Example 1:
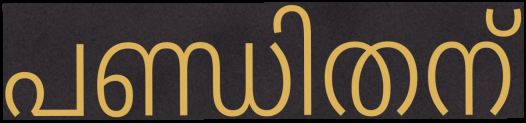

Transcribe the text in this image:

പണ്ഡിതന്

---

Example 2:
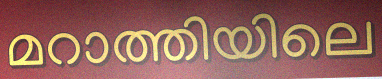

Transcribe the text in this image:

മറാത്തിയിലെ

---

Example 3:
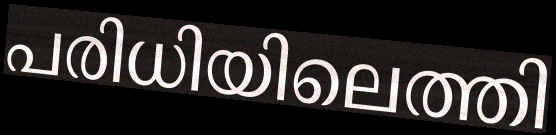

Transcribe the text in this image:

പരിധിയിലെത്തി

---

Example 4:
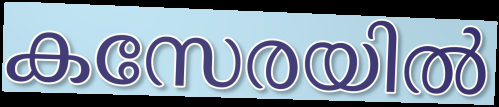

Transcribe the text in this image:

കസേരയിൽ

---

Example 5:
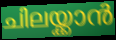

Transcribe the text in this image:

ചിലയ്ക്കാൻ